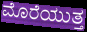
ಮೊರೆಯುತ್ತ